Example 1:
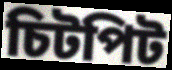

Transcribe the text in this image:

চিটপিট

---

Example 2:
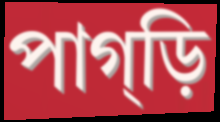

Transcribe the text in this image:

পাগ্ড়ি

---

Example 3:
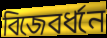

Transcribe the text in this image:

বিজেবর্ধনে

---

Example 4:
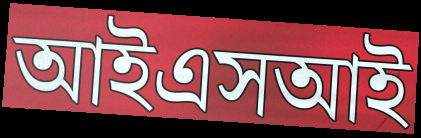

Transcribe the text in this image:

আইএসআই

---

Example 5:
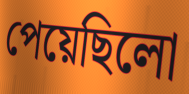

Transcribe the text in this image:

পেয়েছিলো